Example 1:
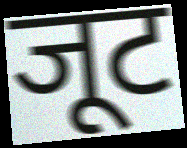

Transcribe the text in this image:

जूट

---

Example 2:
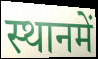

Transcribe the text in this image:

स्थानमें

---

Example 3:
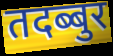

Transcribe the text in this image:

तदब्बुर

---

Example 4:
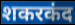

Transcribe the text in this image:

शकरकंद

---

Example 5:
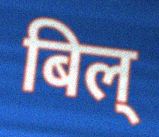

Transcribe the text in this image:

बिल्